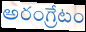
అరంగ్రేటం